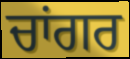
ਚਾਂਗਰ